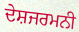
ਦੇਸ਼ਜਰਮਨੀ